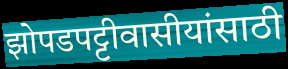
झोपडपट्टीवासीयांसाठी